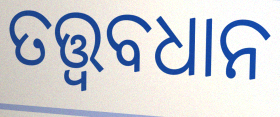
ତତ୍ତ୍ୱବଧାନ